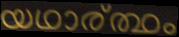
യഥാര്ത്ഥം